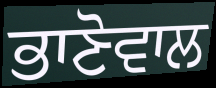
ਭਾਣੋਵਾਲ